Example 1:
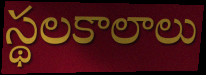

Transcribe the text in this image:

స్థలకాలాలు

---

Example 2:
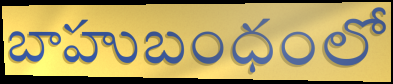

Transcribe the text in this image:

బాహుబంధంలో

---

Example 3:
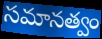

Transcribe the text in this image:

సమానత్వం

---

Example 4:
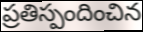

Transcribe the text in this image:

ప్రతిస్పందించిన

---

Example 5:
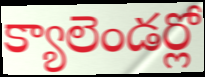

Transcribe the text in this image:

క్యాలెండర్లో